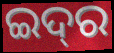
ଇଦ୍‍ର